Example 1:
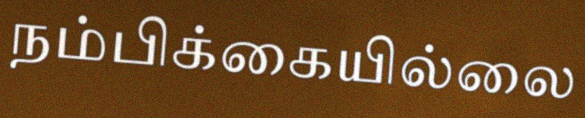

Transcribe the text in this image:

நம்பிக்கையில்லை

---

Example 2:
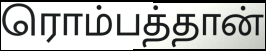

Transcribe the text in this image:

ரொம்பத்தான்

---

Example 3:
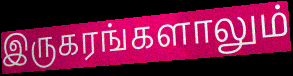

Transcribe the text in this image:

இருகரங்களாலும்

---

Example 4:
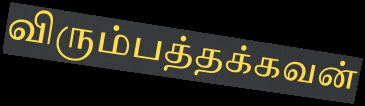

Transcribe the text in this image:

விரும்பத்தக்கவன்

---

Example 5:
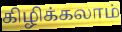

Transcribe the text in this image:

கிழிக்கலாம்